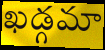
ఖడ్గమా